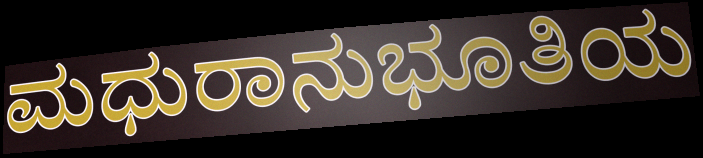
ಮಧುರಾನುಭೂತಿಯ